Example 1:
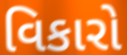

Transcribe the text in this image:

વિકારો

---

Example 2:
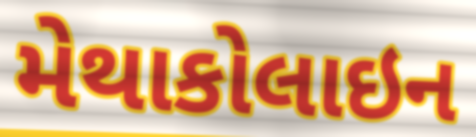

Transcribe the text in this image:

મેથાકોલાઇન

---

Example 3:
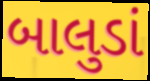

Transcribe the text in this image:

બાલુડાં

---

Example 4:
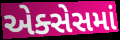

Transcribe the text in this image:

એક્સેસમાં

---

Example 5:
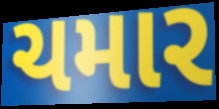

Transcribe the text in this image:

ચમાર